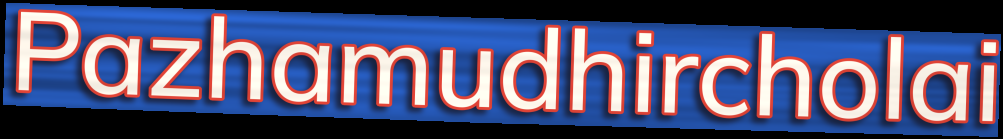
Pazhamudhircholai